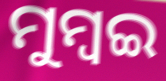
ମୁମ୍ୱଇ